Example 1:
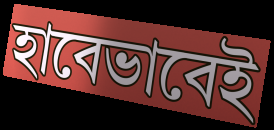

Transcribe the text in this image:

হাবেভাবেই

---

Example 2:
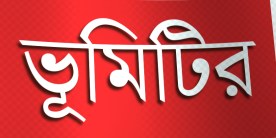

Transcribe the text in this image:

ভূমিটির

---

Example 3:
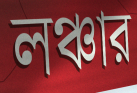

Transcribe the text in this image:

লঞ্চার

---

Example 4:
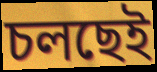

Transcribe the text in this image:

চলছেই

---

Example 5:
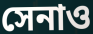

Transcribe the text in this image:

সেনাও